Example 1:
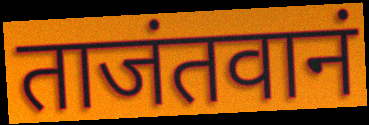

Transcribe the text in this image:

ताजंतवानं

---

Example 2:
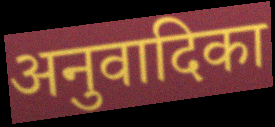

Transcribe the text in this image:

अनुवादिका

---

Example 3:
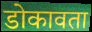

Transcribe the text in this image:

डोकावता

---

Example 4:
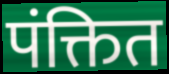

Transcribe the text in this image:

पंक्तित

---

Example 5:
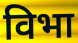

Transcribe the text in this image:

विभा